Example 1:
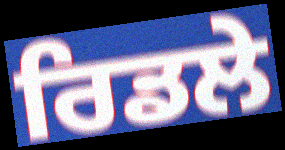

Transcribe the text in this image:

ਰਿਡਲੇ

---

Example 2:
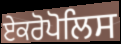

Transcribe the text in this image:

ਏਕਰੋਪੋਲਿਸ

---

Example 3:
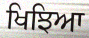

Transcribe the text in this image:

ਖਿਝਿਆ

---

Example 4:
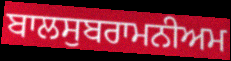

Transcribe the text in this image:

ਬਾਲਸੁਬਰਾਮਨੀਅਮ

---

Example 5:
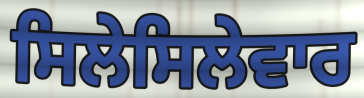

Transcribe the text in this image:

ਸਿਲੇਸਿਲੇਵਾਰ